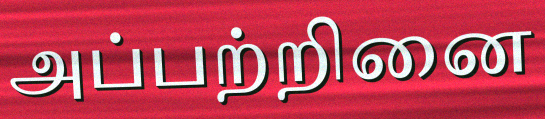
அப்பற்றினை